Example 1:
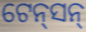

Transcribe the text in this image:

ଟେନ୍‌ସନ୍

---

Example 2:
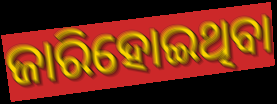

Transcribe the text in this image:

ଜାରିହୋଇଥିବା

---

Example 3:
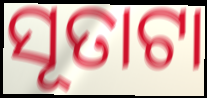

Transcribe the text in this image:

ସୂତାଟା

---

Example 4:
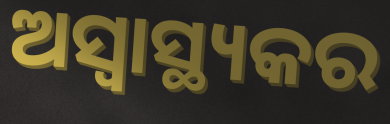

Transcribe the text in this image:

ଅସ୍ୱାସ୍ଥ୍ୟକର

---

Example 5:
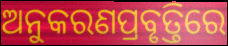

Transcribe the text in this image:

ଅନୁକରଣପ୍ରବୃତ୍ତିରେ